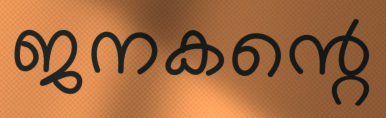
ജനകന്റെ